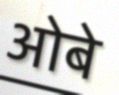
ओबे